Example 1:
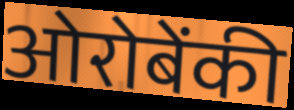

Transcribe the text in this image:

ओरोबेंकी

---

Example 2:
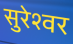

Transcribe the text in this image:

सुरेश्वर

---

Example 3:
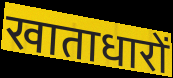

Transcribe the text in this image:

खाताधारों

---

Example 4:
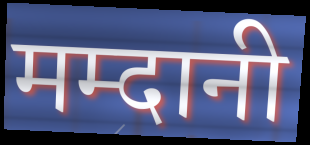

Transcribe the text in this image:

मम्दानी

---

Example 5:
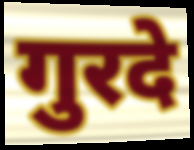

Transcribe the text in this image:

गुरदे